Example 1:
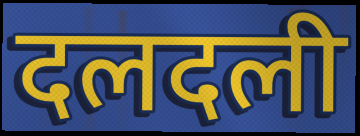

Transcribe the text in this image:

दलदली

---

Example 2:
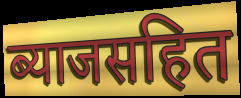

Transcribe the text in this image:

ब्याजसहित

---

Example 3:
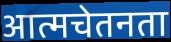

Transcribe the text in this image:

आत्मचेतनता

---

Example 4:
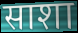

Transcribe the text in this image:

साशा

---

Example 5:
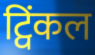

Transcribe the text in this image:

ट्विंकल